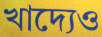
খাদ্যেও